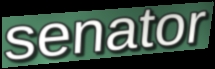
senator